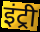
इंट्री